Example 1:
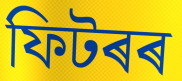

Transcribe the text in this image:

ফিটৰৰ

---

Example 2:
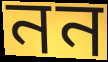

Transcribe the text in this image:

নন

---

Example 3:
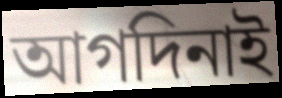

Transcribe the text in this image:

আগদিনাই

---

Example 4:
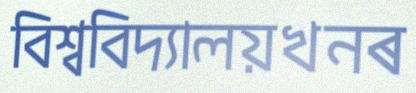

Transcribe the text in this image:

বিশ্ববিদ্যালয়খনৰ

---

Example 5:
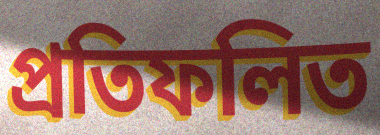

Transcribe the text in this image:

প্ৰতিফলিত